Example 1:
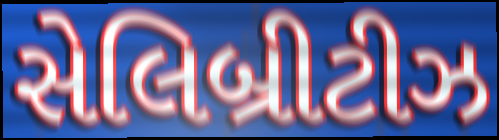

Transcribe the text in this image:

સેલિબ્રીટીઝ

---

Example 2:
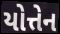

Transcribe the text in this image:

યોત્તેન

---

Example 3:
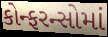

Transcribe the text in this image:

કોન્ફરન્સોમાં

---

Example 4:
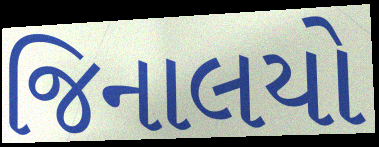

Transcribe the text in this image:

જિનાલયો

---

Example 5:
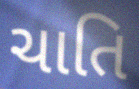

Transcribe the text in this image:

ચાતિ